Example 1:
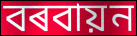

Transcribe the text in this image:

বৰবায়ন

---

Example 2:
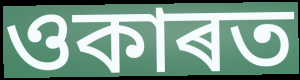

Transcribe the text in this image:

ওকাৰত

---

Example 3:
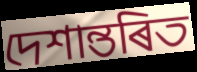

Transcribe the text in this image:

দেশান্তৰিত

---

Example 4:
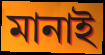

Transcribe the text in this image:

মানাই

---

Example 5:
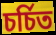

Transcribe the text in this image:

চৰ্চিত